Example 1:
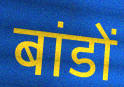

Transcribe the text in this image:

बांडों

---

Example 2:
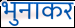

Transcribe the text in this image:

भुनाकर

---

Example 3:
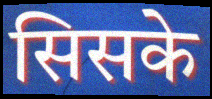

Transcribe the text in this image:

सिसके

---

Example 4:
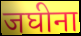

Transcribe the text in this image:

जघीना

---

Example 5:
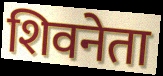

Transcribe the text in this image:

शिवनेता